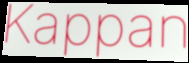
Kappan